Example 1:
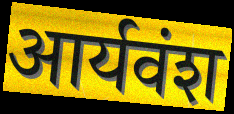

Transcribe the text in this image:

आर्यवंश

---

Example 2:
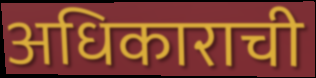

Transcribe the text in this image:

अधिकाराची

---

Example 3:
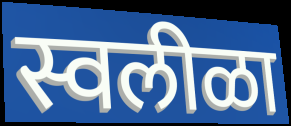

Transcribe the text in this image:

स्वलीळा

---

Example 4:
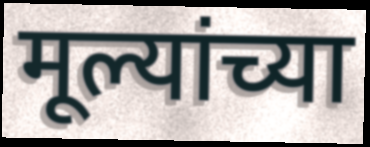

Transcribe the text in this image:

मूल्यांच्या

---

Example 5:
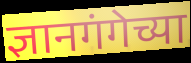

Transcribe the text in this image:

ज्ञानगंगेच्या